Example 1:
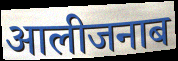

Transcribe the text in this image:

आलीजनाब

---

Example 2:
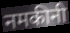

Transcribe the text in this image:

नमकीनी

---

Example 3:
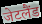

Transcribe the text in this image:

जेटलैंड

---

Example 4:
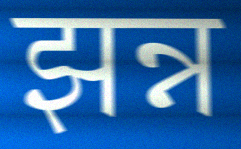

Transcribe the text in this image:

झन्न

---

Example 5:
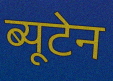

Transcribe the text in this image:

ब्यूटेन